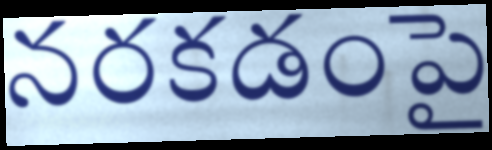
నరకడంపై